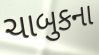
ચાબુકના